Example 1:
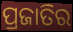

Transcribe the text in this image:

ପ୍ରଜାତିର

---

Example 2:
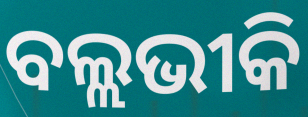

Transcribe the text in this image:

ବଲ୍ଲଭୀକି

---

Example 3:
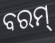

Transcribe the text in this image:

ବରମ୍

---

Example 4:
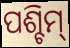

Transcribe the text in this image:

ପଶ୍ଚିମ୍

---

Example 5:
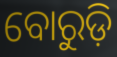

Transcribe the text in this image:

ବୋରୁଡ଼ି